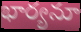
భార్యనూ